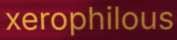
xerophilous